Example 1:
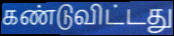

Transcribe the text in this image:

கண்டுவிட்டது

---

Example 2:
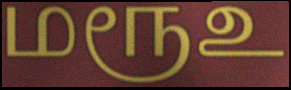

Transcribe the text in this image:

மரூஉ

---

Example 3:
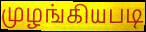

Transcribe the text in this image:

முழங்கியபடி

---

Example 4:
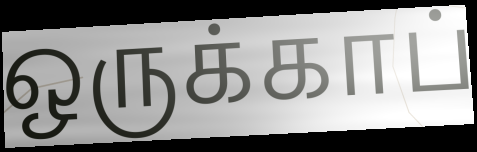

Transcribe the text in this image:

ஒருக்காப்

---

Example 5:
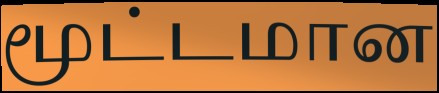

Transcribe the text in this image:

மூட்டமான